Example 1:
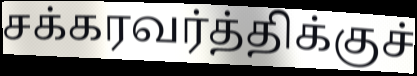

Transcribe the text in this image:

சக்கரவர்த்திக்குச்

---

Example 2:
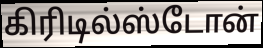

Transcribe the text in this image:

கிரிடில்ஸ்டோன்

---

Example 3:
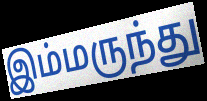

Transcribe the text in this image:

இம்மருந்து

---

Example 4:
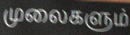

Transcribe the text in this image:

முலைகளும்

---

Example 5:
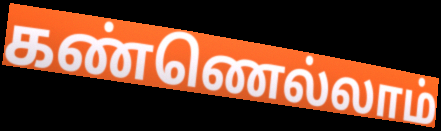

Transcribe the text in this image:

கண்ணெல்லாம்